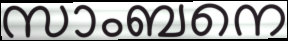
സാംബനെ